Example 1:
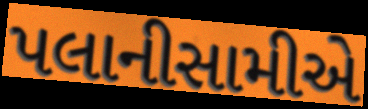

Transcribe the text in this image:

પલાનીસામીએ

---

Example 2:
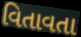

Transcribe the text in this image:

વિતાવતા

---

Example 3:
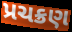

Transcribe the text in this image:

પ્રચક્રણ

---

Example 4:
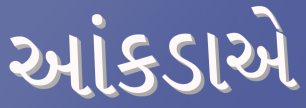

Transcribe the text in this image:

આંકડાએ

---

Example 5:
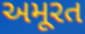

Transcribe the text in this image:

અમૂરત